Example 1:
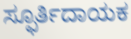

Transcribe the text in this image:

ಸ್ಫೂರ್ತಿದಾಯಕ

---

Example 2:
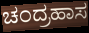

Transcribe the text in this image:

ಚಂದ್ರಹಾಸ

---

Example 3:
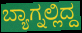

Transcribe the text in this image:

ಬ್ಯಾಗ್ನಲ್ಲಿದ್ದ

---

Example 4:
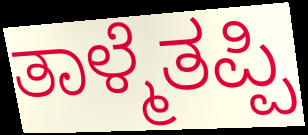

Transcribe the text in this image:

ತಾಳ್ಮೆತಪ್ಪಿ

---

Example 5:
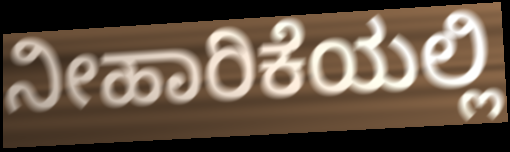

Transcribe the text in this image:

ನೀಹಾರಿಕೆಯಲ್ಲಿ